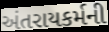
અંતરાયકર્મની